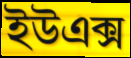
ইউএক্স